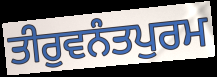
ਤੀਰੁਵਨੰਤਪੁਰਮ